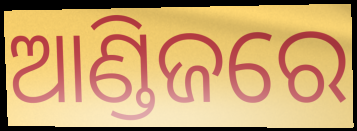
ଆଣ୍ଡିଜରେ